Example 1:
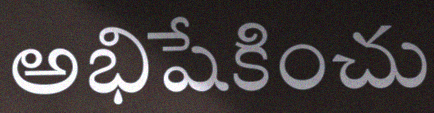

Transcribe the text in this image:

అభిషేకించు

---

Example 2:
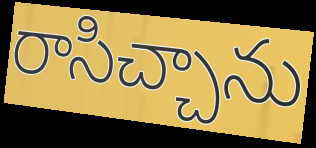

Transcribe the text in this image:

రాసిచ్చాను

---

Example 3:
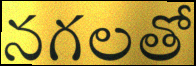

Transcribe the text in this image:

నగలతో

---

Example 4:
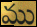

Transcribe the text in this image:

ము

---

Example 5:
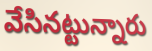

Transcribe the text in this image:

వేసినట్టున్నారు